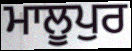
ਮਾਲੂਪੁਰ